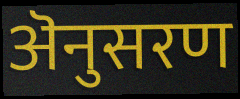
ऄनुसरण